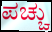
ಪಚ್ಚು